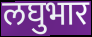
लघुभार